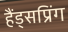
हैंड्सप्रिंग